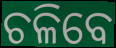
ଚଳିବେ